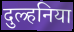
दुल्हनिया